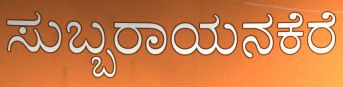
ಸುಬ್ಬರಾಯನಕೆರೆ